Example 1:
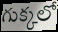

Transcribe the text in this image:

గుక్కలో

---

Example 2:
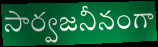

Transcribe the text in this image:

సార్వజనీనంగా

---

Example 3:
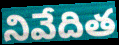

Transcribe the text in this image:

నివేదిత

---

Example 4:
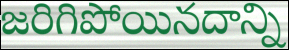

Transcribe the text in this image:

జరిగిపోయినదాన్ని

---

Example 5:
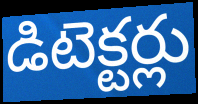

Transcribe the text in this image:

డిటెక్టర్లు